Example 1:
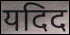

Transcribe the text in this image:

यदिद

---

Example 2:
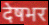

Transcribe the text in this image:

देषभर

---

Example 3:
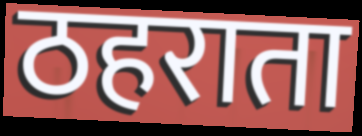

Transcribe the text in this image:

ठहराता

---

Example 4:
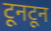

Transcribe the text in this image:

टूनटून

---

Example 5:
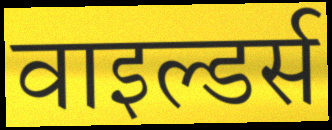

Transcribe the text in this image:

वाइल्डर्स